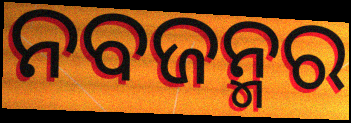
ନବଜନ୍ମର